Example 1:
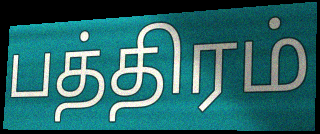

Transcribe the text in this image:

பத்திரம்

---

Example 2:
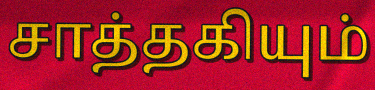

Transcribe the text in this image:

சாத்தகியும்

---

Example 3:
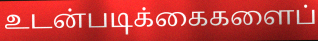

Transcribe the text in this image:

உடன்படிக்கைகளைப்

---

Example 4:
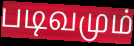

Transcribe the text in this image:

படிவமும்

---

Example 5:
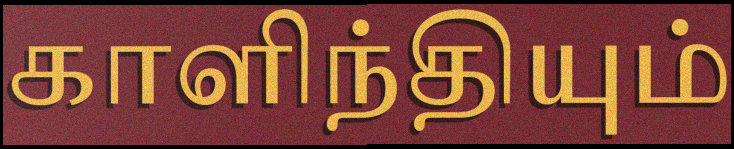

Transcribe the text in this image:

காளிந்தியும்